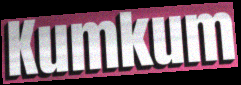
Kumkum